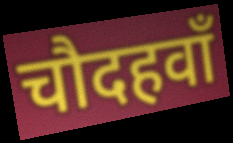
चौदहवाँ